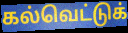
கல்வெட்டுக்